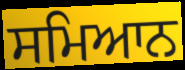
ਸਮਿਆਨ